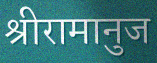
श्रीरामानुज